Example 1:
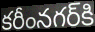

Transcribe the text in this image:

కరీంనగర్‌కి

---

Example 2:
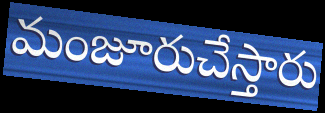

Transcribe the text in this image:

మంజూరుచేస్తారు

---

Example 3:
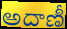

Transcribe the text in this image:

అదాణీ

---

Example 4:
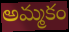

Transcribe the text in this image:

అమ్మకం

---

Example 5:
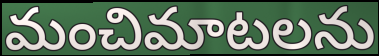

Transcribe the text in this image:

మంచిమాటలను